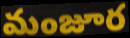
మంజూర